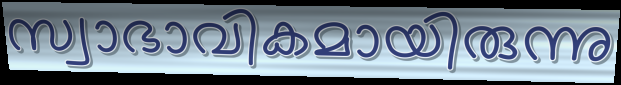
സ്വാഭാവികമായിരുന്നു